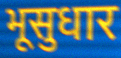
भूसुधार